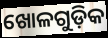
ଖୋଳଗୁଡ଼ିକ